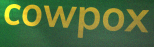
cowpox